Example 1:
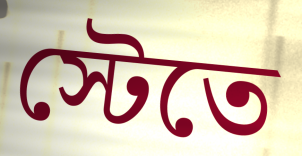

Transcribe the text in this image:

স্টেতে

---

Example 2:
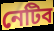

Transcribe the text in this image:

নেটিব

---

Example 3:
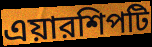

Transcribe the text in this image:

এয়ারশিপটি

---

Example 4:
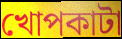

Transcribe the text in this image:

খোপকাটা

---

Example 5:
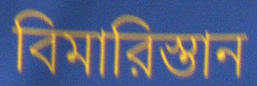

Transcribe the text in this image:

বিমারিস্তান